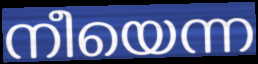
നീയെന്ന